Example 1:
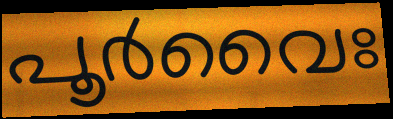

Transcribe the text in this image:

പൂർവൈഃ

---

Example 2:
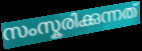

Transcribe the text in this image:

സംസ്കരിക്കുന്നത്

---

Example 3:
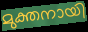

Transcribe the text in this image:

മുക്തനായി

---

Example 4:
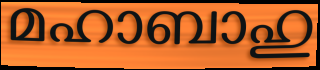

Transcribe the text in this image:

മഹാബാഹു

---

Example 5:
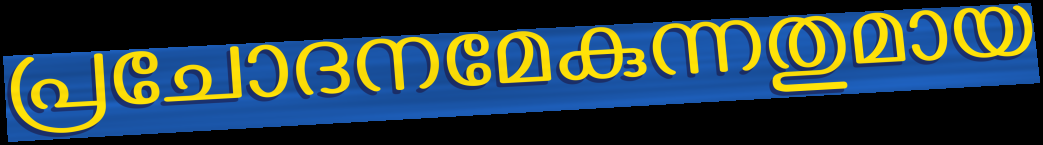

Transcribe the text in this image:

പ്രചോദനമേകുന്നതുമായ